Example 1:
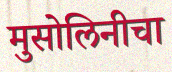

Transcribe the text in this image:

मुसोलिनीचा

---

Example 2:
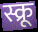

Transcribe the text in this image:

स्क्रू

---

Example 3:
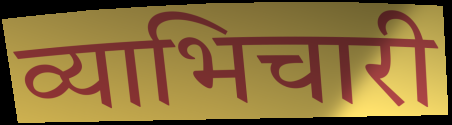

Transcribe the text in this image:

व्याभिचारी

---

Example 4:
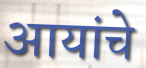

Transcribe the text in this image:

आयांचे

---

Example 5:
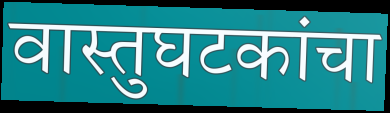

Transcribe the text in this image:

वास्तुघटकांचा